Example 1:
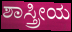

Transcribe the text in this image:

ಶಾಸ್ತ್ರೀಯ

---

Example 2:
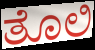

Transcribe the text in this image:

ತೊಲಿ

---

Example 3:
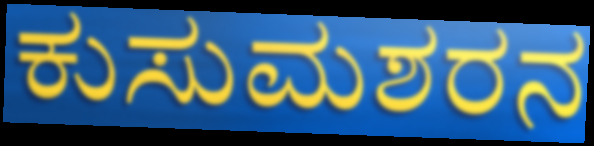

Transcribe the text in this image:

ಕುಸುಮಶರನ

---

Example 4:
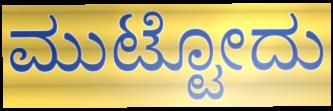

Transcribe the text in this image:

ಮುಟ್ಟೋದು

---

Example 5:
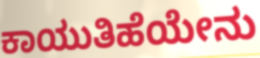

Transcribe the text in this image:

ಕಾಯುತಿಹೆಯೇನು